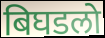
बिघडलो